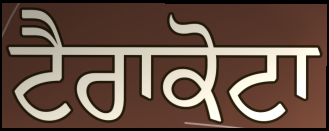
ਟੈਰਾਕੋਟਾ